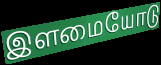
இளமையோடு